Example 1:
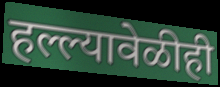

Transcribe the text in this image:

हल्ल्यावेळीही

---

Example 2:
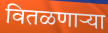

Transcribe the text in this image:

वितळणाऱ्या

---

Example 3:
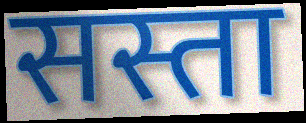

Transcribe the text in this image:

सस्ता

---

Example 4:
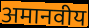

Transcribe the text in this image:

अमानवीय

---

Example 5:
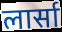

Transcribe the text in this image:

लार्सा